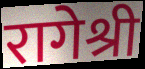
रागेश्री